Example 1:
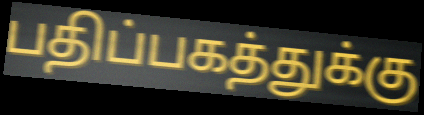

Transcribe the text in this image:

பதிப்பகத்துக்கு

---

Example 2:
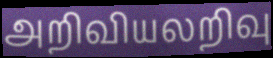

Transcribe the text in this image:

அறிவியலறிவு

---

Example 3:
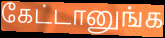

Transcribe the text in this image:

கேட்டானுங்க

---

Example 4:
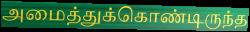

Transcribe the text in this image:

அமைத்துக்கொண்டிருந்த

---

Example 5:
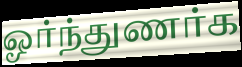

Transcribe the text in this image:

ஓர்ந்துணர்க